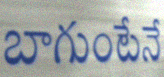
బాగుంటేనే